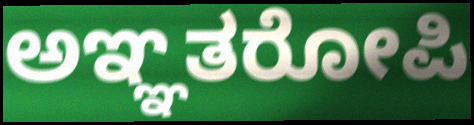
ಅಞ್ಞತರೋಪಿ